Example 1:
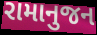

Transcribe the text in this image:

રામાનુજન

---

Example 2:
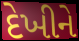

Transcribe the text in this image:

દેખીને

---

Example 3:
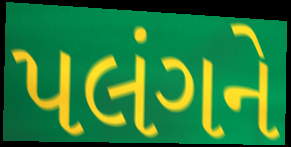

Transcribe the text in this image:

પલંગને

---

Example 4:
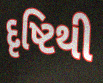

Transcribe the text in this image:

દૃષ્ટિથી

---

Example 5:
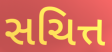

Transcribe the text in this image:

સચિત્ત